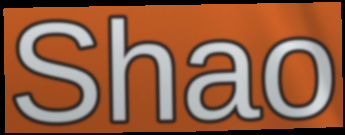
Shao